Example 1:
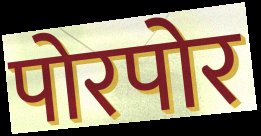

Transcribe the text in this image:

पोरपोर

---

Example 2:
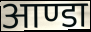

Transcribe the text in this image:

आण्डा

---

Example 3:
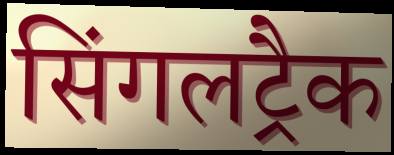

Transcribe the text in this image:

सिंगलट्रैक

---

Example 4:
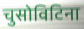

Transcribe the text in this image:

चुसोविटिना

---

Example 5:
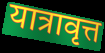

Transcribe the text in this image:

यात्रावृत्त